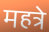
महत्रे